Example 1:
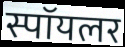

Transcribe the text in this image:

स्पॉयलर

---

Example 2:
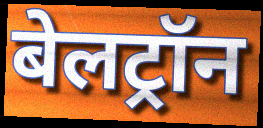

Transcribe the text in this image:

बेलट्रॉन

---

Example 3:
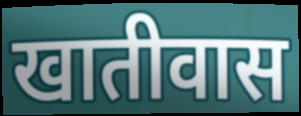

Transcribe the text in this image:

खातीवास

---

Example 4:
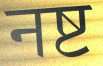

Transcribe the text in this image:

नष्ट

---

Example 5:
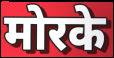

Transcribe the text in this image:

मोरके